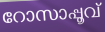
റോസാപ്പൂവ്